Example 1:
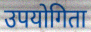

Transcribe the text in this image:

उपयोगिता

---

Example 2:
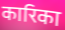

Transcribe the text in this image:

कारिका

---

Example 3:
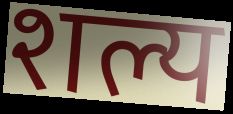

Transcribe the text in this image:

शल्‍य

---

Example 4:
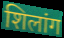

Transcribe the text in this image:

शिलांग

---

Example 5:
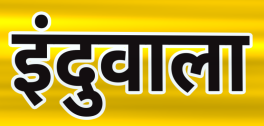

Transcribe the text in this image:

इंदुवाला